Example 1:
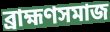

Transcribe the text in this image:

ব্রাহ্মণসমাজ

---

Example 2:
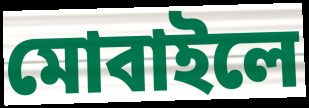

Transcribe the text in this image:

মোবাইলে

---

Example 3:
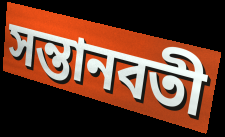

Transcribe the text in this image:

সন্তানবতী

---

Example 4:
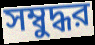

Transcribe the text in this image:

সম্বুদ্ধর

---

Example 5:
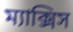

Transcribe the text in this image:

ম্যাক্সিস